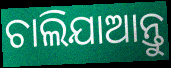
ଚାଲିଯାଆନ୍ତୁ